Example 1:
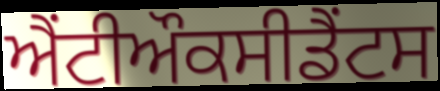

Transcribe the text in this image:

ਐਂਟੀਔਕਸੀਡੈਂਟਸ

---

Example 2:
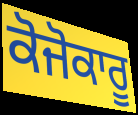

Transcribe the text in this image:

ਕੋਜੋਕਾਰੂ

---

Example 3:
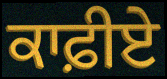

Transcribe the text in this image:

ਕਾਫ਼ੀਏ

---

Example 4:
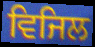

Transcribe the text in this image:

ਵਿਜਿਲ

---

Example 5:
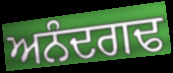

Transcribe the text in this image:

ਅਨੰਦਗਢ